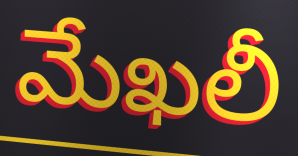
మేఖలీ